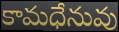
కామధేనువు